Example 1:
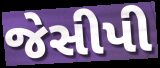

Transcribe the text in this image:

જેસીપી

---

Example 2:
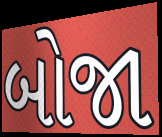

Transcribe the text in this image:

બોજા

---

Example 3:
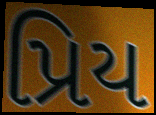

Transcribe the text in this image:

પ્રિય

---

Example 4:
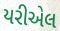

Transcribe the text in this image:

યરીએલ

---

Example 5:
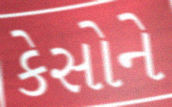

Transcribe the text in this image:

કેસોને